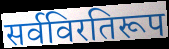
सर्वविरतिरूप